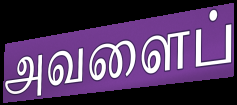
அவளைப்